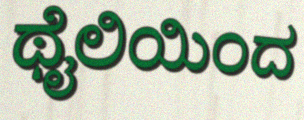
ಥೈಲಿಯಿಂದ